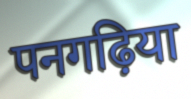
पनगढ़िया